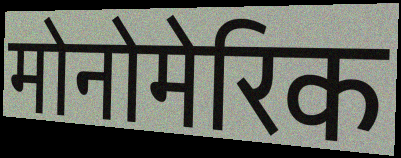
मोनोमेरिक